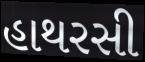
હાથરસી